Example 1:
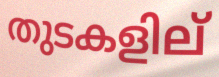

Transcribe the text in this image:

തുടകളില്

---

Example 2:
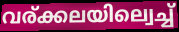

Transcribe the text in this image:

വര്ക്കലയില്വെച്ച്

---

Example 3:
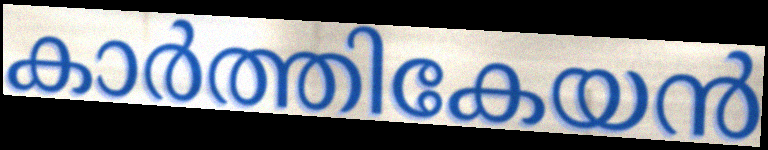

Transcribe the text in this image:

കാർത്തികേയൻ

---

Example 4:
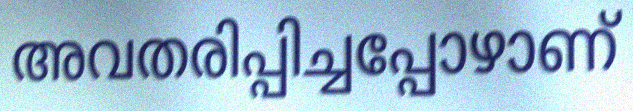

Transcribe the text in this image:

അവതരിപ്പിച്ചപ്പോഴാണ്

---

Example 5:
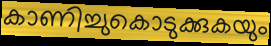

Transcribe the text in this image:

കാണിച്ചുകൊടുക്കുകയും